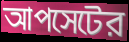
আপসেটের